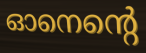
ഓനെന്റെ